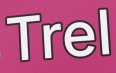
Trel